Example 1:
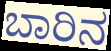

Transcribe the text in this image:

ಬಾರಿನ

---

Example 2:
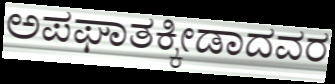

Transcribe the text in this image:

ಅಪಘಾತಕ್ಕೀಡಾದವರ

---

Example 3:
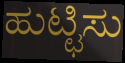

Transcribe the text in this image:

ಹುಟ್ಟಿಸು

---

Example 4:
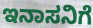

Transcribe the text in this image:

ಇನಾಸನಿಗೆ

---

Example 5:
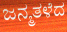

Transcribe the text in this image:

ಜನ್ಮತಳೆದ